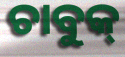
ଚାବୁକ୍